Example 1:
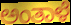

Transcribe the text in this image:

ಅಂತಾಳೆ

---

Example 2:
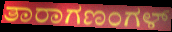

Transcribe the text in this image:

ತಾರಾಗಣಂಗಳ್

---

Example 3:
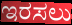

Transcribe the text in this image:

ಇರಸಲು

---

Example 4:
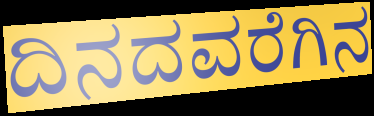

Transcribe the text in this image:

ದಿನದವರೆಗಿನ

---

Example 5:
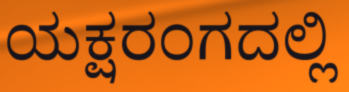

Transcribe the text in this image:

ಯಕ್ಷರಂಗದಲ್ಲಿ